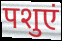
पशुएं